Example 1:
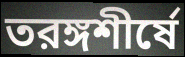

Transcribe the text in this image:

তরঙ্গশীর্ষে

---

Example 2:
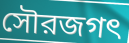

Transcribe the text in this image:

সৌরজগৎ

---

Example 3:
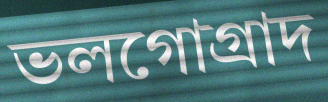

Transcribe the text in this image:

ভলগোগ্রাদ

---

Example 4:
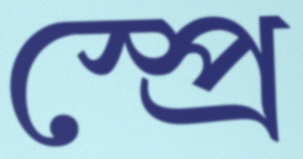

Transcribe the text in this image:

স্প্রে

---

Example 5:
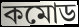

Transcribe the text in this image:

কমোড